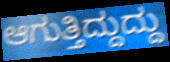
ಆಗುತ್ತಿದ್ದುದ್ದು